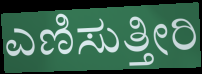
ಎಣಿಸುತ್ತೀರಿ